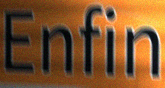
Enfin